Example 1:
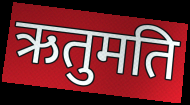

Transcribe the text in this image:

ऋतुमति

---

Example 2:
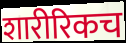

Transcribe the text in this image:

शारीरिकच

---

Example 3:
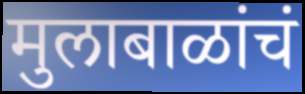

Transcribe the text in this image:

मुलाबाळांचं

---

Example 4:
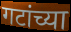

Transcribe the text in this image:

गटांच्या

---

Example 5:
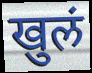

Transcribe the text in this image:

खुलं